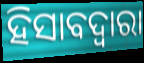
ହିସାବଦ୍ଵାରା